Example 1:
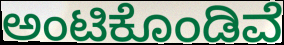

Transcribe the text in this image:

ಅಂಟಿಕೊಂಡಿವೆ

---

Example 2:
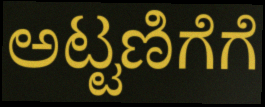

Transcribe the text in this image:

ಅಟ್ಟಣಿಗೆಗೆ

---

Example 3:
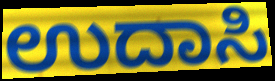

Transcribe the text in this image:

ಉದಾಸಿ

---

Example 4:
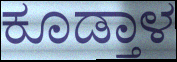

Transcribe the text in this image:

ಕೂಡ್ತಾಳ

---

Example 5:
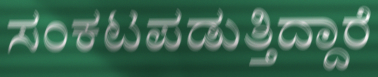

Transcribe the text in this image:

ಸಂಕಟಪಡುತ್ತಿದ್ದಾರೆ